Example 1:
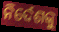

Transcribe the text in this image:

ନିର୍ଦେଶକୁ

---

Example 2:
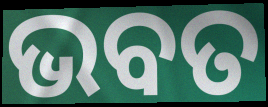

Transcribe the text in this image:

ଭବତ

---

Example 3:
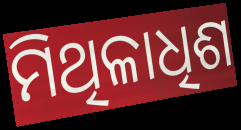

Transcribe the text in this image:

ମିଥିଳାଧିଶ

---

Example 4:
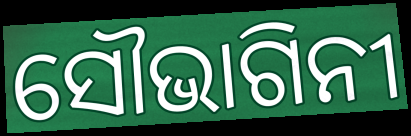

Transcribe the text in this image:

ସୌଭାଗିନୀ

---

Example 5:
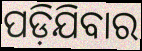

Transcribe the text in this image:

ପଡ଼ିଯିବାର